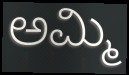
ಅಮ್ಮಿ